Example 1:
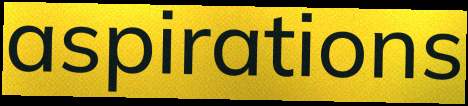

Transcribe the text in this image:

aspirations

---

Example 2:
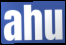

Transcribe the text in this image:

ahu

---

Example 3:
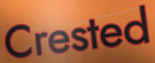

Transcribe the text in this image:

Crested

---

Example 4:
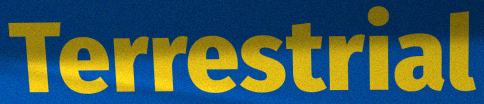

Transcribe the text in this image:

Terrestrial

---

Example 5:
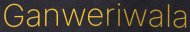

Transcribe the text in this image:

Ganweriwala